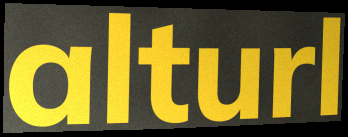
alturl